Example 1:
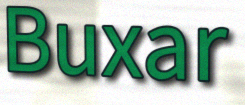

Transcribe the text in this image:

Buxar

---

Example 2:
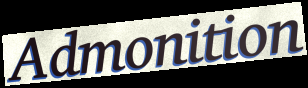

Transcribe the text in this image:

Admonition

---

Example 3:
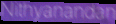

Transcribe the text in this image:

Nithyanandan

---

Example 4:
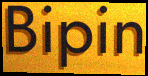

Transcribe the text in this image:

Bipin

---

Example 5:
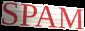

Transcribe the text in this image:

SPAM